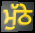
ਮੁੱਠੇ